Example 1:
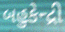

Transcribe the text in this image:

બહુકેન્દ્રી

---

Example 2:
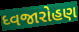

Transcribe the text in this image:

ધ્વજારોહણ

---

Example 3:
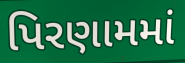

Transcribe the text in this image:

પિરણામમાં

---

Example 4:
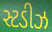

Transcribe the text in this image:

સ્ટડીઝ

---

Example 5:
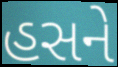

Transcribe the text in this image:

હસને